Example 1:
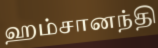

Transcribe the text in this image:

ஹம்சானந்தி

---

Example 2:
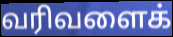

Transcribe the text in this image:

வரிவளைக்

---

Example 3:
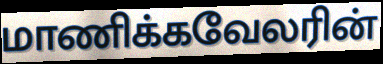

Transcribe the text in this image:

மாணிக்கவேலரின்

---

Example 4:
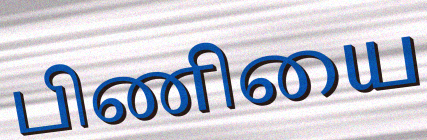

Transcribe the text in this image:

பிணியை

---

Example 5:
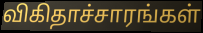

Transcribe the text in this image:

விகிதாச்சாரங்கள்